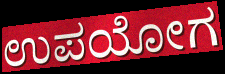
ಉಪಯೋಗ